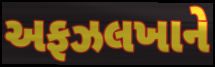
અફઝલખાને